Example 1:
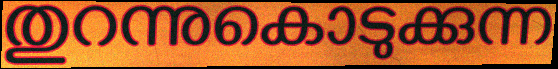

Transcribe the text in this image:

തുറന്നുകൊടുക്കുന്ന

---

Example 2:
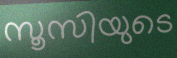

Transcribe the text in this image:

സൂസിയുടെ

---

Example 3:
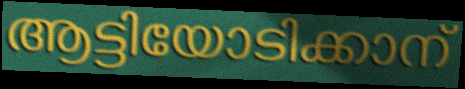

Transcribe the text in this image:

ആട്ടിയോടിക്കാന്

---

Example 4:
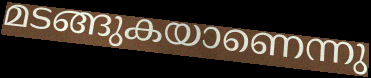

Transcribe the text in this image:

മടങ്ങുകയാണെന്നു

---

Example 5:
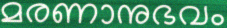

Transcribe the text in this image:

മരണാനുഭവം